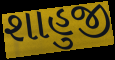
શાહુજી